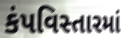
કંપવિસ્તારમાં